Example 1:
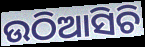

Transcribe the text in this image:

ଉଠିଆସିଚି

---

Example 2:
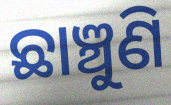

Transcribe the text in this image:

ଛାଞ୍ଚୁଣି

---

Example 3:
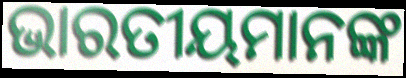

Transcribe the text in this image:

ଭାରତୀୟମାନଙ୍କ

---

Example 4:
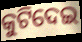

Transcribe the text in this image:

କୁଟିଦେଇ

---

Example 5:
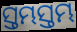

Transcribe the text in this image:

ସ୍ତମ୍ଭସ୍ତମ୍ଭ